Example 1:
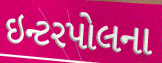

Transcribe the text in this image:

ઇન્ટરપોલના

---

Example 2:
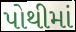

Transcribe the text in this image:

પોથીમાં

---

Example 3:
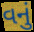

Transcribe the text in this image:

વનું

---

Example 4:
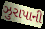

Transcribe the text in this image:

ઝુરાપાની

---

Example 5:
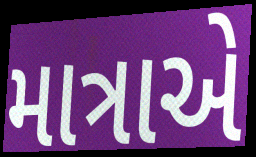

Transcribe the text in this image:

માત્રાએ